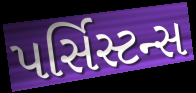
પર્સિસ્ટન્સ